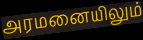
அரமனையிலும்